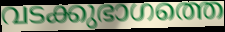
വടക്കുഭാഗത്തെ